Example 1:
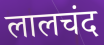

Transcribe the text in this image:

लालचंद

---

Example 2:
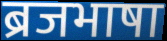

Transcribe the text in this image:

ब्रजभाषा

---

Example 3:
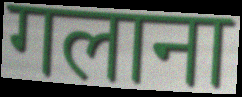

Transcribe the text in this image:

गलाना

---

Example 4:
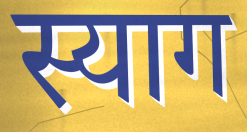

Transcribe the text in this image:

स्याग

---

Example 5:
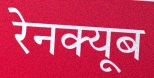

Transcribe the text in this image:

रेनक्यूब